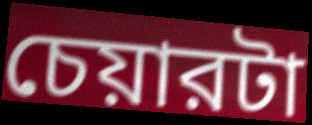
চেয়ারটা